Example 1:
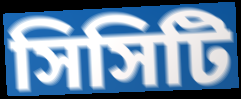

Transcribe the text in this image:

সিসিটি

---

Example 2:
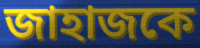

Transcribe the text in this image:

জাহাজকে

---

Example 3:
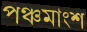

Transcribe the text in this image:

পঞ্চমাংশ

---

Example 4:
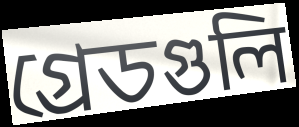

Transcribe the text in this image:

গ্রেডগুলি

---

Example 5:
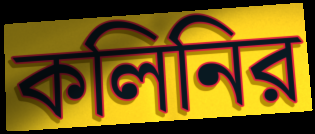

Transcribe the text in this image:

কলিনির